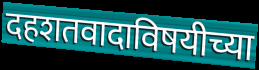
दहशतवादाविषयीच्या